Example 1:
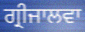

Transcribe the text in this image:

ਗ੍ਰੀਜਾਲਵਾ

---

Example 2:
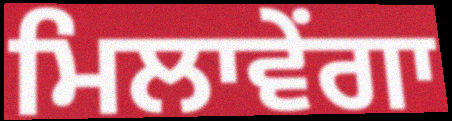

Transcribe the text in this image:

ਮਿਲਾਵੇਂਗਾ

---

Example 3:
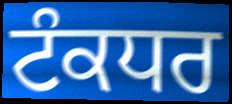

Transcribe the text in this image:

ਟੰਕਧਰ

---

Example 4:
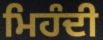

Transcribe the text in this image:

ਮਿਹੰਦੀ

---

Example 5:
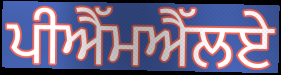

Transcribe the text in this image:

ਪੀਐੱਮਐੱਲਏ